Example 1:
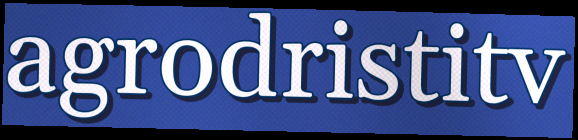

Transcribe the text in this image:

agrodristitv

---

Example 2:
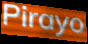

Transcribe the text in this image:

Pirayo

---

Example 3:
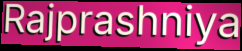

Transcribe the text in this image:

Rajprashniya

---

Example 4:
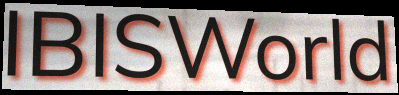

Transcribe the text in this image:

IBISWorld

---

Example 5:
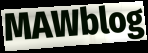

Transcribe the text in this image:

MAWblog